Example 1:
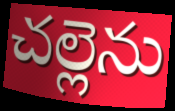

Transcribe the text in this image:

చల్లెను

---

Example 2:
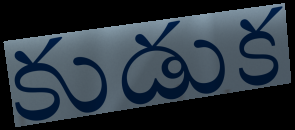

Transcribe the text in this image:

కుడుక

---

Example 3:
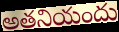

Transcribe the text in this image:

అతనియందు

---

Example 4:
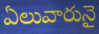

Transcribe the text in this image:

ఏలువారునై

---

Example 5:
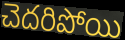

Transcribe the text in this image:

చెదరిపోయి